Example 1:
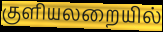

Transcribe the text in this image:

குளியலறையில்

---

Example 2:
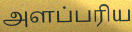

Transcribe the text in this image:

அளப்பரிய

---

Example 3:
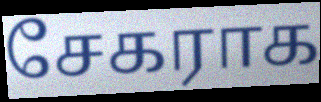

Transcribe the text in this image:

சேகராக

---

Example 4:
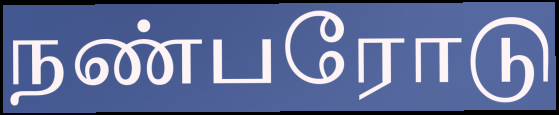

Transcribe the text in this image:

நண்பரோடு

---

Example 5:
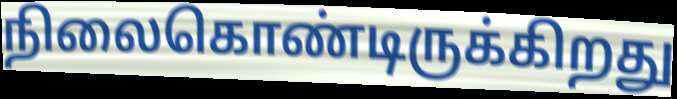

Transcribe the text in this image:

நிலைகொண்டிருக்கிறது